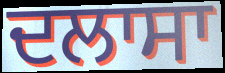
ਦਲਾਸਾ